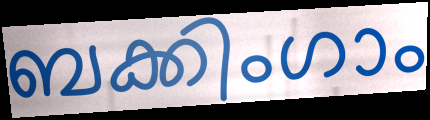
ബക്കിംഗാം